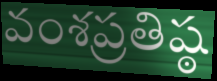
వంశప్రతిష్ఠ